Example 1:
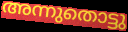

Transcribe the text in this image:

അന്നുതൊട്ടു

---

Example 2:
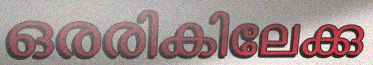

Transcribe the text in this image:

ഒരരികിലേക്കു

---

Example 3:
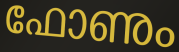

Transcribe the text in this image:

ഫോണും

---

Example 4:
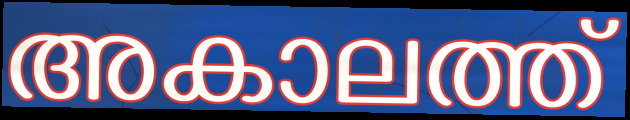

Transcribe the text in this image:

അകാലത്ത്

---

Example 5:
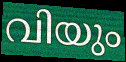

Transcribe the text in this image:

വിയും